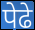
पेढे